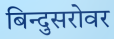
बिन्दुसरोवर